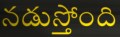
నడుస్తోంది